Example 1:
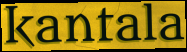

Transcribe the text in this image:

kantala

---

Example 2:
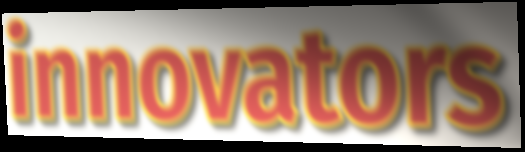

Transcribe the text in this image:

innovators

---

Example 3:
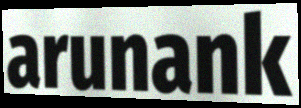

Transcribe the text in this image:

arunank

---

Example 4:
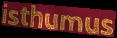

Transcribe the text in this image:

isthumus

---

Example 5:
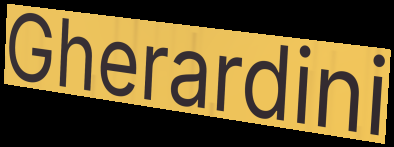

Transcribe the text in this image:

Gherardini